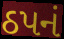
ઠપનં